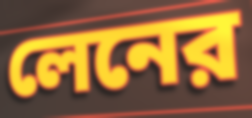
লেনের